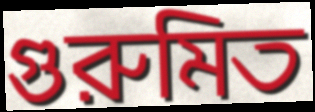
গুরুমিত